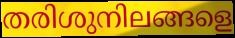
തരിശുനിലങ്ങളെ